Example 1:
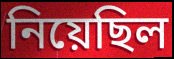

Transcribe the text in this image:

নিয়েছিল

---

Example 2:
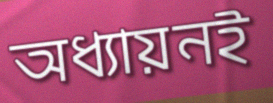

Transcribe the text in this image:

অধ্যায়নই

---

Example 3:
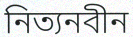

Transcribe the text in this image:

নিত্যনবীন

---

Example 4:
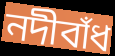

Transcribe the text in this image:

নদীবাঁধ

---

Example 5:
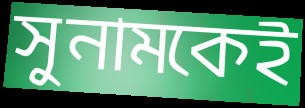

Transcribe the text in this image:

সুনামকেই